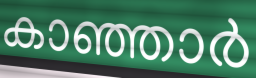
കാഞ്ഞാർ